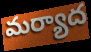
మర్యాద